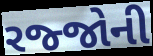
રજ્જોની